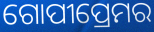
ଗୋପୀପ୍ରେମର